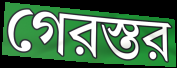
গেরস্তর